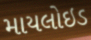
માયલોઇડ